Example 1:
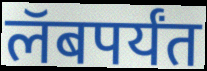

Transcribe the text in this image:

लॅबपर्यंत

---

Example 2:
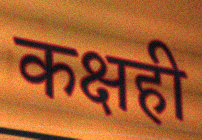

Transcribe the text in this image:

कक्षही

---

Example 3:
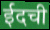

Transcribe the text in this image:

ईदची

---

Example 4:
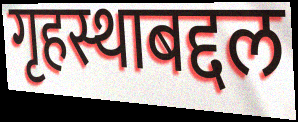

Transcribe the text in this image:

गृहस्थाबद्दल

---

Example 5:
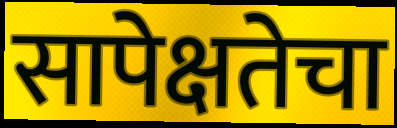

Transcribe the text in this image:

सापेक्षतेचा